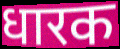
धारक